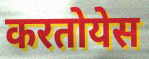
करतोयेस